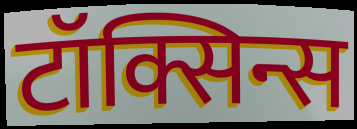
टॉक्सिन्स